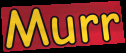
Murr